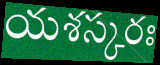
యశస్కరః